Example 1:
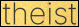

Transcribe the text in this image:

theist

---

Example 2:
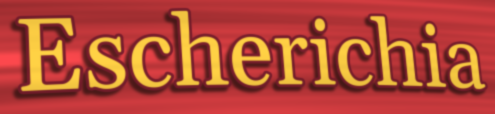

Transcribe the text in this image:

Escherichia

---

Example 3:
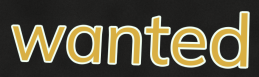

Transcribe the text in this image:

wanted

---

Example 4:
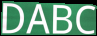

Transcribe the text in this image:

DABC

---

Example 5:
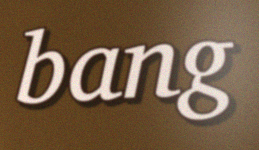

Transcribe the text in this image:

bang